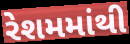
રેશમમાંથી